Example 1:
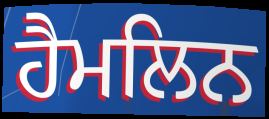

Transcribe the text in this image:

ਹੈਮਲਿਨ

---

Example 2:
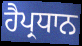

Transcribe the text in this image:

ਹੈਪ੍ਰਧਾਨ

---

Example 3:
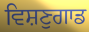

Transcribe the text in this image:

ਵਿਸ਼ਣੁਗਾਡ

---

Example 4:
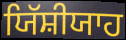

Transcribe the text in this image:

ਯਿੱਸ਼ੀਯਾਹ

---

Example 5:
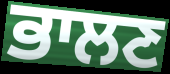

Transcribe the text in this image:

ਭਾਲਣ